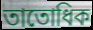
তাতোধিক